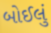
બોઈલું